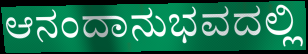
ಆನಂದಾನುಭವದಲ್ಲಿ